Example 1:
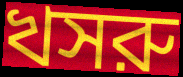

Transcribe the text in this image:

খসরু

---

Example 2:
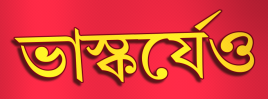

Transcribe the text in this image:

ভাস্কর্যেও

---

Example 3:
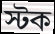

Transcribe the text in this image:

স্টক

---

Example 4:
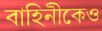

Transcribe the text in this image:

বাহিনীকেও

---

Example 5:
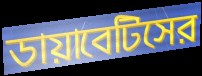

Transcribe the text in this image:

ডায়াবেটিসের